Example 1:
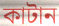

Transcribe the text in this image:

কাটান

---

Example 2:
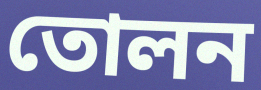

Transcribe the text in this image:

তোলন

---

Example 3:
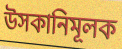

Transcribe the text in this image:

উসকানিমূলক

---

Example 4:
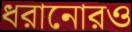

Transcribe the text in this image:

ধরানোরও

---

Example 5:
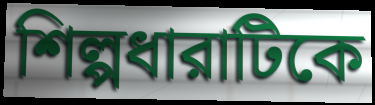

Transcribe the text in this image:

শিল্পধারাটিকে